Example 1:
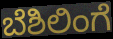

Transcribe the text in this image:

ಬೆಶಿಲಿಂಗೆ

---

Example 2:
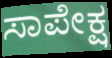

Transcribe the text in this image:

ಸಾಪೇಕ್ಷ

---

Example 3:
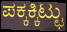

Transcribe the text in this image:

ಪಕ್ಕಕ್ಕಿಟ್ಟು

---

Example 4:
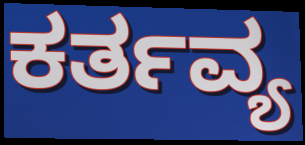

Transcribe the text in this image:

ಕರ್ತವ್ಯ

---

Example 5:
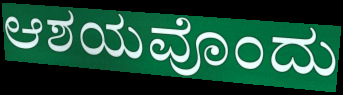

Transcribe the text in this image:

ಆಶಯವೊಂದು